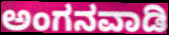
ಅಂಗನವಾಡಿ